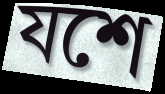
যশে